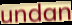
undan